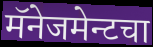
मॅनेजमेन्टचा